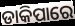
ଡାକିପାରେ